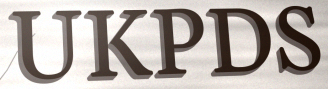
UKPDS